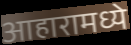
आहारामध्ये